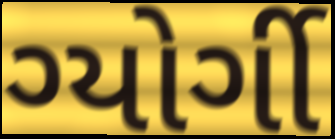
ગ્યોર્ગી